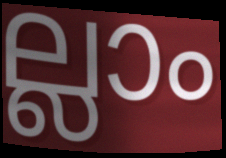
ല്ലാം